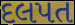
દલપત